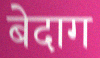
बेदाग